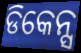
ଡିକେନ୍ସ